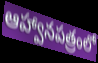
ఆహ్వానపత్రంలో